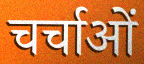
चर्चाओं